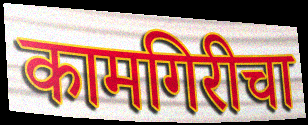
कामगिरीचा